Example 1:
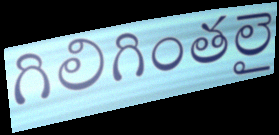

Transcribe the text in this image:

గిలిగింతలై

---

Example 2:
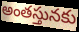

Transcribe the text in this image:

అంతస్తునకు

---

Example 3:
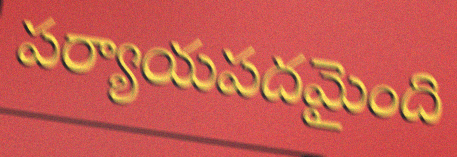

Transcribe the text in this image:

పర్యాయపదమైంది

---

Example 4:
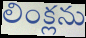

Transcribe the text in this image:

లింక్లను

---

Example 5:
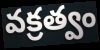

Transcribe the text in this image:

వక్రత్వం